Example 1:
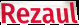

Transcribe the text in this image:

Rezaul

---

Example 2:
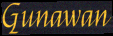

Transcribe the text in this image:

Gunawan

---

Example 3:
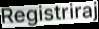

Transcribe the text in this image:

Registriraj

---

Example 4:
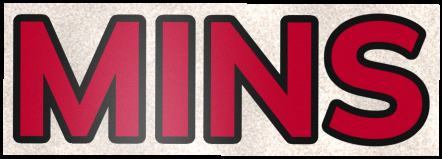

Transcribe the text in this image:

MINS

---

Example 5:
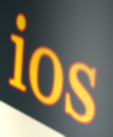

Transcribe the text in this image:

ios